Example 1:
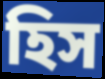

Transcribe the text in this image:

হিস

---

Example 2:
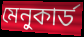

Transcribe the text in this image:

মেনুকার্ড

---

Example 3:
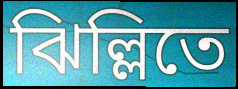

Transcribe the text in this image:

ঝিল্লিতে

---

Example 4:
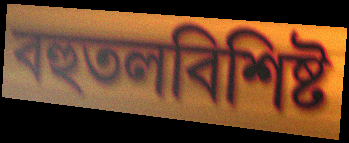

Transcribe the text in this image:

বহুতলবিশিষ্ট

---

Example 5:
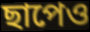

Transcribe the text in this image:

ছাপেও